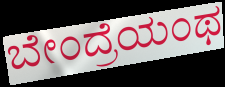
ಬೇಂದ್ರೆಯಂಥ